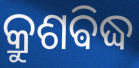
କ୍ରୁଶଵିଦ୍ଧ